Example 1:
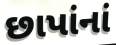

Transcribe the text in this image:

છાપાંનાં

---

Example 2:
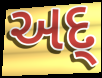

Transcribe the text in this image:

અદ્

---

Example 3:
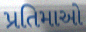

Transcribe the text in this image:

પ્રતિમાઓ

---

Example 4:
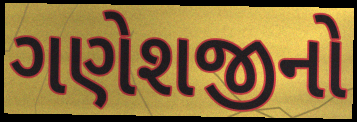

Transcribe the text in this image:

ગણેશજીનો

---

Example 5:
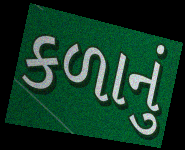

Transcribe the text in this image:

કળાનું